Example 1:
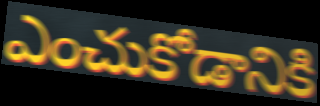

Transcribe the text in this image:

ఎంచుకోడానికి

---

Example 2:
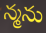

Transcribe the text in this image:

న్మను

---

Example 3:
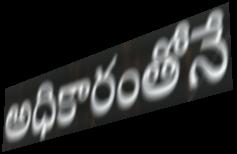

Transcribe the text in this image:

అధికారంతోనే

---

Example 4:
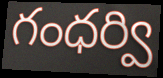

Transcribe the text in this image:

గంధర్వి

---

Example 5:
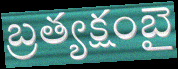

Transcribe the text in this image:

బ్రత్యక్షంబై